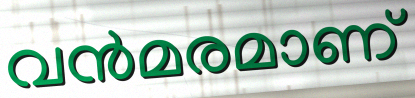
വൻമരമാണ്